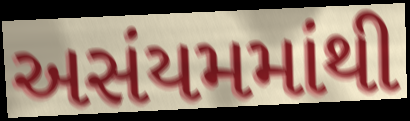
અસંયમમાંથી